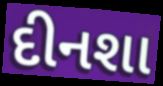
દીનશા